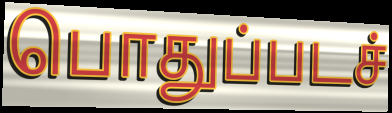
பொதுப்படச்